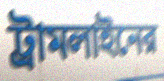
ট্রামলাইনের